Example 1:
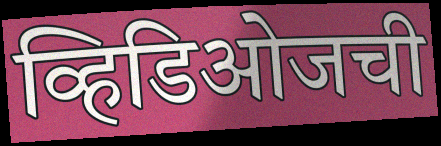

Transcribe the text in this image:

व्हिडिओजची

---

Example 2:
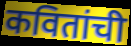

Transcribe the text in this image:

कवितांची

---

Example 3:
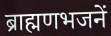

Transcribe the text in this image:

ब्राह्मणभजनें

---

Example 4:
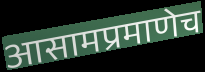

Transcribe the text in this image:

आसामप्रमाणेच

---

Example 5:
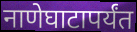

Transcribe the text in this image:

नाणेघाटापर्यंत